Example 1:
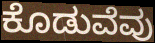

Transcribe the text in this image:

ಕೊಡುವೆವು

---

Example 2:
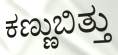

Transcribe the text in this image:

ಕಣ್ಣುಬಿತ್ತು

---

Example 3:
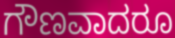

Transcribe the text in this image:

ಗೌಣವಾದರೂ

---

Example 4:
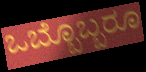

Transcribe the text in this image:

ಒಬ್ಬೊಬ್ಬರೂ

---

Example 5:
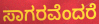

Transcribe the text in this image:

ಸಾಗರವೆಂದರೆ